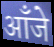
आँजे